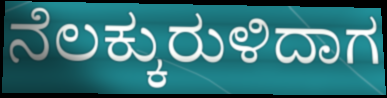
ನೆಲಕ್ಕುರುಳಿದಾಗ